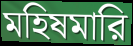
মহিষমারি